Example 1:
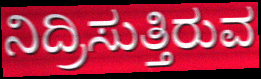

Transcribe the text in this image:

ನಿದ್ರಿಸುತ್ತಿರುವ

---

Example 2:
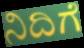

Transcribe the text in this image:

ನಿದಿಗೆ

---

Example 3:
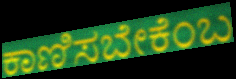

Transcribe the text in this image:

ಕಾಣಿಸಬೇಕೆಂಬ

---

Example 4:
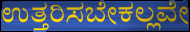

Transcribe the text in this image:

ಉತ್ತರಿಸಬೇಕಲ್ಲವೇ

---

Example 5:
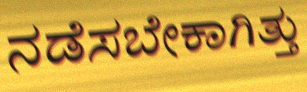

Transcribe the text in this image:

ನಡೆಸಬೇಕಾಗಿತ್ತು